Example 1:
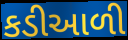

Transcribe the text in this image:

કડીઆળી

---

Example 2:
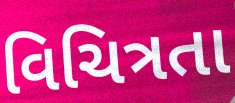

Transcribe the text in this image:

વિચિત્રતા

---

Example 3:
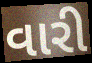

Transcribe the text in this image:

વારી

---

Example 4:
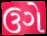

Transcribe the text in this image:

ઉગે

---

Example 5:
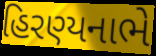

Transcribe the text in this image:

હિરણ્યનાભે